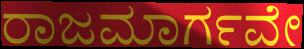
ರಾಜಮಾರ್ಗವೇ